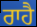
ਰਾਹੈ